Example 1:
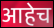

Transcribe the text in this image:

आहेच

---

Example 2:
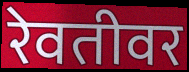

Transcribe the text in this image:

रेवतीवर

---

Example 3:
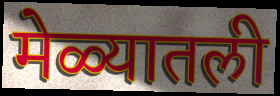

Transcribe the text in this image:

मेळ्यातली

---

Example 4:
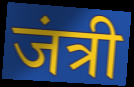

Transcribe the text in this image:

जंत्री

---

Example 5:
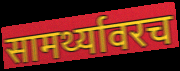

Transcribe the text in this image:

सामर्थ्यावरच